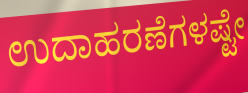
ಉದಾಹರಣೆಗಳಷ್ಟೇ